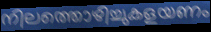
നിലത്തൊഴിച്ചുകളയണം